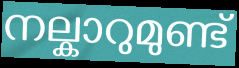
നല്കാറുമുണ്ട്